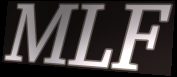
MLF